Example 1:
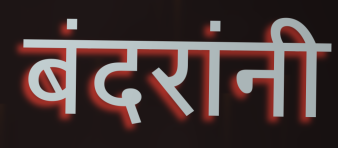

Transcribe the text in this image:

बंदरांनी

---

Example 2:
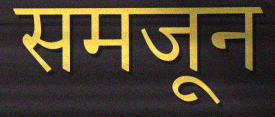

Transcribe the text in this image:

समजून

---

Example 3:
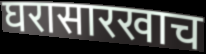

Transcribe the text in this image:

घरासारखाच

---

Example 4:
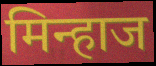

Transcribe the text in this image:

मिन्हाज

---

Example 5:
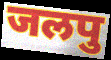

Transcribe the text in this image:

जलपु